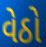
વેઠો